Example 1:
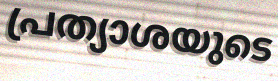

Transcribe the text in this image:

പ്രത്യാശയുടെ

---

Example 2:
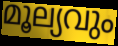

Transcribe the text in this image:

മൂല്യവും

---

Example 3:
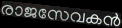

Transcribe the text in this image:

രാജസേവകൻ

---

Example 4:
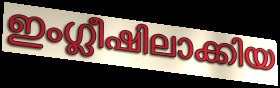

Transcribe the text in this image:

ഇംഗ്ലീഷിലാക്കിയ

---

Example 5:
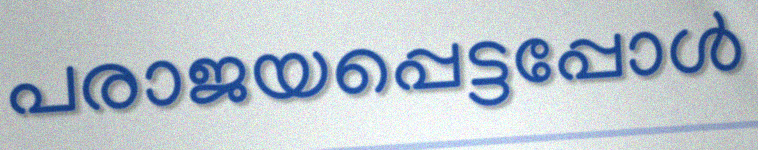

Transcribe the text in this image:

പരാജയപ്പെട്ടപ്പോൾ